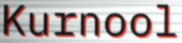
Kurnool